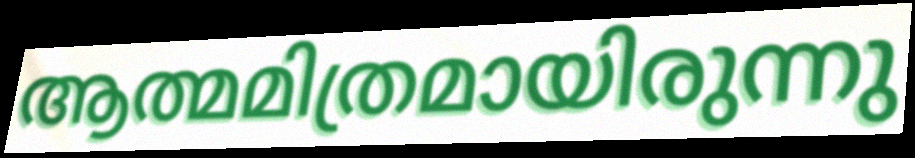
ആത്മമിത്രമായിരുന്നു